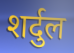
शर्दुल